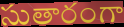
సుతారంగా